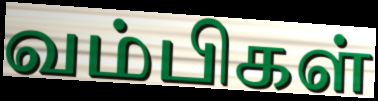
வம்பிகள்